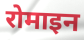
रोमाइन